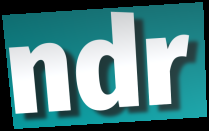
ndr